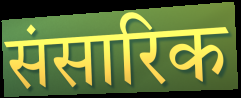
संसारिक